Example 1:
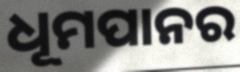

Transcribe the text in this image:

ଧୂମପାନର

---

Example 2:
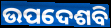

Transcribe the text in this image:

ଉପଦେଶବି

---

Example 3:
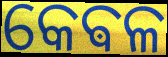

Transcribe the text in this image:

କେଵଳ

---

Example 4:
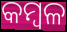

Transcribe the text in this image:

କମ୍ବଳ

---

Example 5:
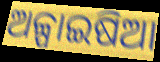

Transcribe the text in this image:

ଅଳ୍ପାଇଷିଆ